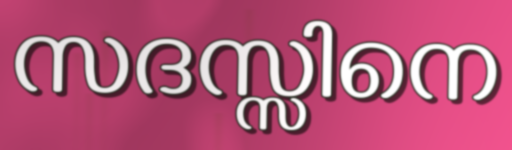
സദസ്സിനെ